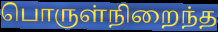
பொருள்நிறைந்த